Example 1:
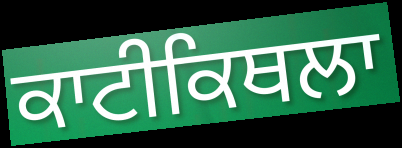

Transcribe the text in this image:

ਕਾਟੀਕਿਥਲਾ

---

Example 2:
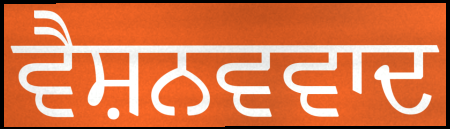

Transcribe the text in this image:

ਵੈਸ਼ਨਵਵਾਦ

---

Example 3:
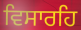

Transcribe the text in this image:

ਵਿਸਾਰਹਿ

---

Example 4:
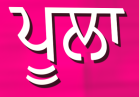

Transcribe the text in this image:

ਪੂਲਾ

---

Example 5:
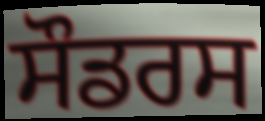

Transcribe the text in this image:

ਸੌਡਰਸ